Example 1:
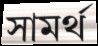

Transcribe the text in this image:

সামৰ্থ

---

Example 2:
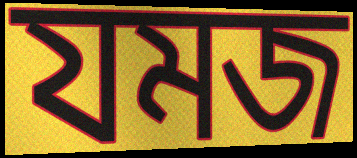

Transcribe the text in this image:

যমজ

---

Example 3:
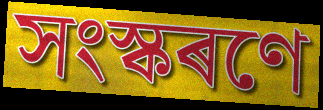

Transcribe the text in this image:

সংস্কৰণে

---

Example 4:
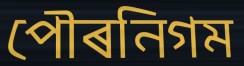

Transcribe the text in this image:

পৌৰনিগম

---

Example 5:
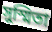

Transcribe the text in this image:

সুস্মিতা